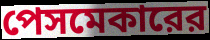
পেসমেকারের